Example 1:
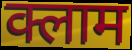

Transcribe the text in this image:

क्लाम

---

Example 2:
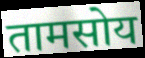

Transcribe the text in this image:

तामसोय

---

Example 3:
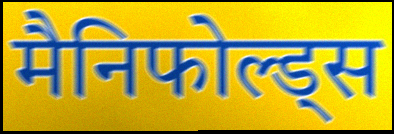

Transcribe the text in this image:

मैनिफोल्ड्स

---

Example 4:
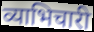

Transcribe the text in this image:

व्याभिचारी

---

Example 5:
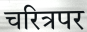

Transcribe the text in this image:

चरित्रपर